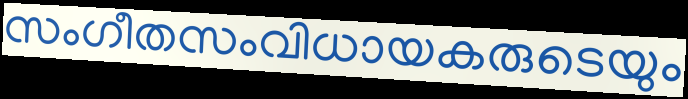
സംഗീതസംവിധായകരുടെയും